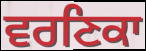
ਵਰਣਿਕਾ